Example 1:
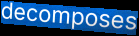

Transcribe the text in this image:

decomposes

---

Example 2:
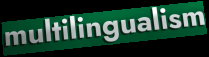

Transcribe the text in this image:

multilingualism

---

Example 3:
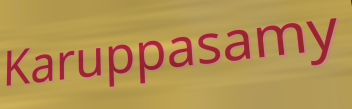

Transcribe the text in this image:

Karuppasamy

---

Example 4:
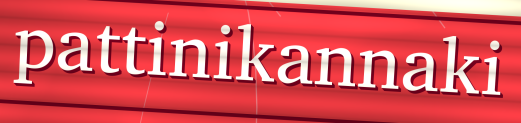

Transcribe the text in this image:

pattinikannaki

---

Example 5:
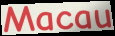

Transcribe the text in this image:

Macau